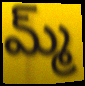
మ్మ్